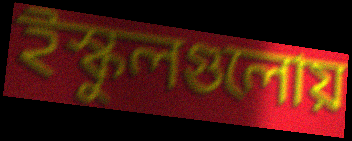
ইস্কুলগুলোয়